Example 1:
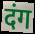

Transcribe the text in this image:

दंग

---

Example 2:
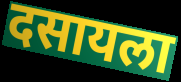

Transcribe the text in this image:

दसायला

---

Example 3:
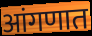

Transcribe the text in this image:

आंगणात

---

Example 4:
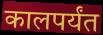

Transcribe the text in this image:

कालपर्यंत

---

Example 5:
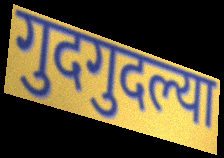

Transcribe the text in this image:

गुदगुदल्या